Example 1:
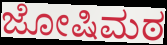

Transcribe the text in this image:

ಜೋಷಿಮಠ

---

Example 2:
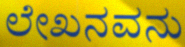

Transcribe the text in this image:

ಲೇಖನವನು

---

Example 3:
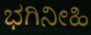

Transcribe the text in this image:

ಭಗಿನೀಹಿ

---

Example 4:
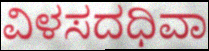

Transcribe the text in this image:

ವಿಳಸದಧಿವಾ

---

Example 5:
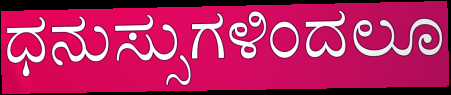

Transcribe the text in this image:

ಧನುಸ್ಸುಗಳಿಂದಲೂ